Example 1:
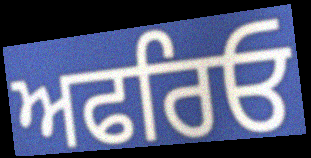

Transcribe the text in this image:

ਅਫਰਿਓ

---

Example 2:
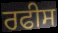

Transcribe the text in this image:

ਰਫੀਸ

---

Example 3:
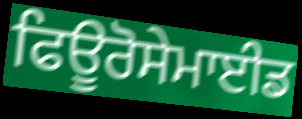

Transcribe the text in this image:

ਫਿਊਰੋਸੇਮਾਈਡ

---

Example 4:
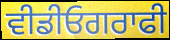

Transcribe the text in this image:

ਵੀਡੀਓਗਰਾਫੀ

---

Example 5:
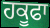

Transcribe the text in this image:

ਹਕੂਫਾ